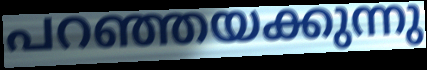
പറഞ്ഞയക്കുന്നു